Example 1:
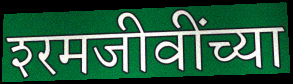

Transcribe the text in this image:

श्रमजीवींच्या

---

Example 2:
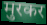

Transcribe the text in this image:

मुरकर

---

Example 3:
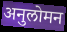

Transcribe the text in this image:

अनुलोमन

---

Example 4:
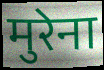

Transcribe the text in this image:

मुरेना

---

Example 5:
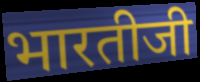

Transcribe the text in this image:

भारतीजी